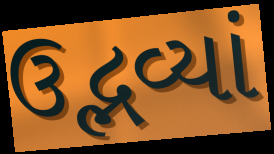
ઉદ્ભવ્યાં